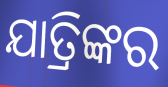
ଯାତ୍ରିଙ୍କର